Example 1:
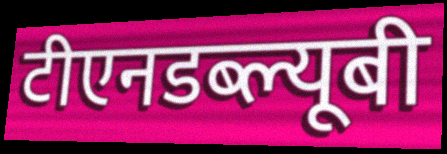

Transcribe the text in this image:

टीएनडब्ल्यूबी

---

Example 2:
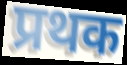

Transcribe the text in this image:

प्रथक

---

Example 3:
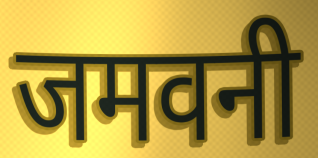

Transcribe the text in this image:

जमवनी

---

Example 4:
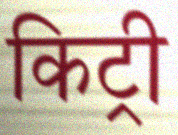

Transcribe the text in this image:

किट्री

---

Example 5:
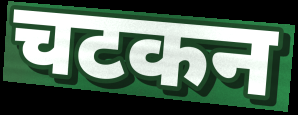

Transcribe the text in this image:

चटकन